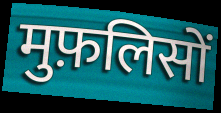
मुफ़लिसों